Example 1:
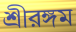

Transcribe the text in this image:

শ্রীরঙ্গম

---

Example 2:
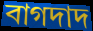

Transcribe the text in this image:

বাগদাদ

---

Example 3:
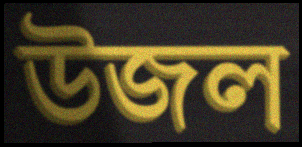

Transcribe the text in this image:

উজল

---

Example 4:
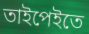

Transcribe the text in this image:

তাইপেইতে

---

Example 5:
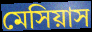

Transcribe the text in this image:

মেসিয়াস